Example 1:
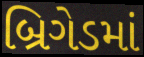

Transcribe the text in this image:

બ્રિગેડમાં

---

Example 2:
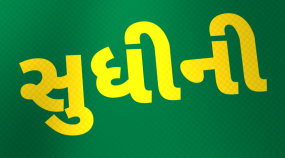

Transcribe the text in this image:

સુધીની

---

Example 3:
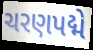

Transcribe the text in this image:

ચરણપદ્મે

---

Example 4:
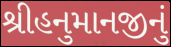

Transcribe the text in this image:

શ્રીહનુમાનજીનું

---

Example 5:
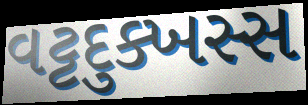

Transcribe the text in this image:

વટ્ટદુક્ખસ્સ